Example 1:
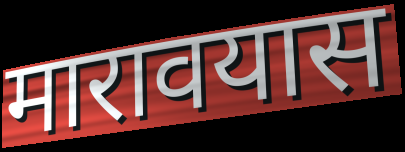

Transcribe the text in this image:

मारावयास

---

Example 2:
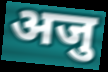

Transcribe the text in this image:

अजु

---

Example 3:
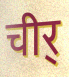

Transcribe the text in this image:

चीर्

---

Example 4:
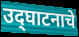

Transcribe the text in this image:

उद्‌घाटनाचे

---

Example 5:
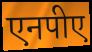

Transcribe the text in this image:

एनपीए